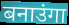
बनाउंगा